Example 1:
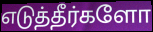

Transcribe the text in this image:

எடுத்தீர்களோ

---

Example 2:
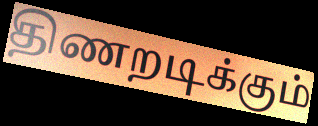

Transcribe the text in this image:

திணறடிக்கும்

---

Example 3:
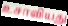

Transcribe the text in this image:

உசாவியது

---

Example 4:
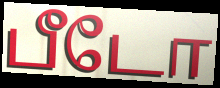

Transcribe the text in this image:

பீடோ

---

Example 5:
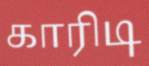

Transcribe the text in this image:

காரிடி